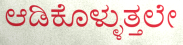
ಆಡಿಕೊಳ್ಳುತ್ತಲೇ